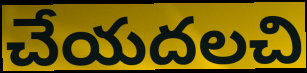
చేయదలచి